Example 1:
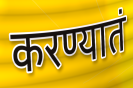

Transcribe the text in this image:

करण्यातं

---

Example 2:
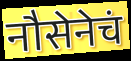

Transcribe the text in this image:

नौसेनेचं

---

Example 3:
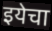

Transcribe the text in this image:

इयेचा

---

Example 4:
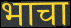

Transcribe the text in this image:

भाचा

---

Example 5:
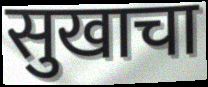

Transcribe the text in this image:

सुखाचा